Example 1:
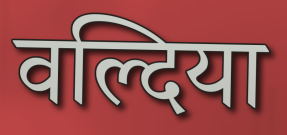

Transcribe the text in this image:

वल्दिया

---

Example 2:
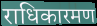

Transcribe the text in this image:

राधिकारमण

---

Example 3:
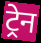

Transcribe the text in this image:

ट्रेन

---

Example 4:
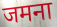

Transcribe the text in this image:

जमना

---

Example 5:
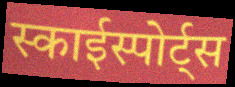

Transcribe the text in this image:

स्काईस्पोर्ट्स